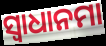
ସ୍ଵାଧାନମା